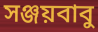
সঞ্জয়বাবু